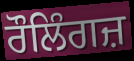
ਰੌਲਿੰਗਜ਼